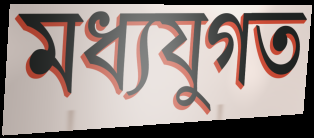
মধ্যযুগত